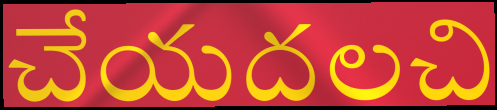
చేయదలచి